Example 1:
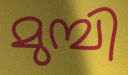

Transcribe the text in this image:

മുമ്പി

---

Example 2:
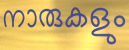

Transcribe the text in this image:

നാരുകളും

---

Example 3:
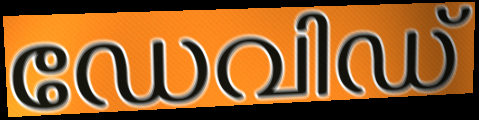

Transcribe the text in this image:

ഡേവിഡ്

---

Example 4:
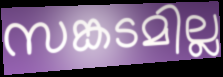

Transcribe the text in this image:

സങ്കടമില്ല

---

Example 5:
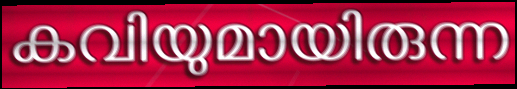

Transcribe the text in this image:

കവിയുമായിരുന്ന